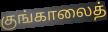
குங்காலைத்